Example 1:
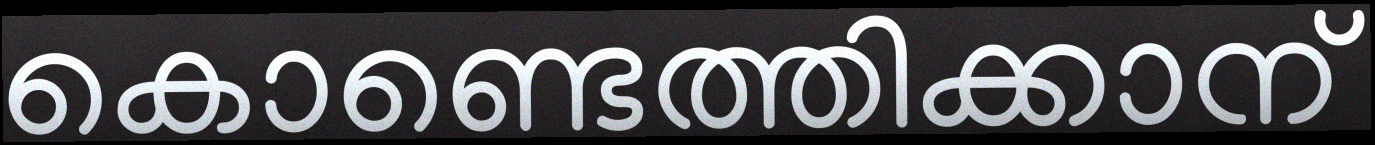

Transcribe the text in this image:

കൊണ്ടെത്തിക്കാന്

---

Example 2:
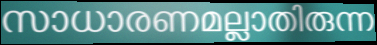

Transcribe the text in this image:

സാധാരണമല്ലാതിരുന്ന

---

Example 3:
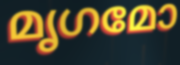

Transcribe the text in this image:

മൃഗമോ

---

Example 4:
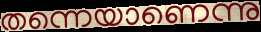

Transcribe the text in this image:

തന്നെയാണെന്നു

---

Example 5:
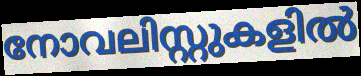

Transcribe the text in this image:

നോവലിസ്റ്റുകളിൽ